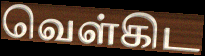
வெள்கிட